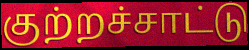
குற்றச்சாட்டு